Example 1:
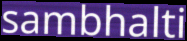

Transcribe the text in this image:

sambhalti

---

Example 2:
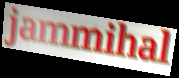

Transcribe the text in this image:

jammihal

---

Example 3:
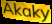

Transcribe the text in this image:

Akaky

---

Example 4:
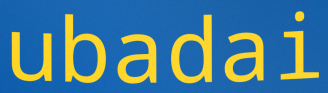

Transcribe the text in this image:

ubadai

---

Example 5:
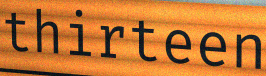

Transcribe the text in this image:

thirteen